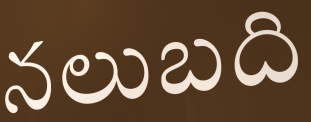
నలుబది